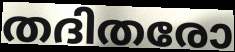
തദിതരോ